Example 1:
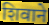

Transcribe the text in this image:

शिवाने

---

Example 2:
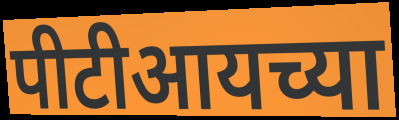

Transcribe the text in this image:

पीटीआयच्या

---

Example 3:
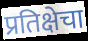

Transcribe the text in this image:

प्रतिक्षेचा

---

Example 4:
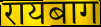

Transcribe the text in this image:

रायबाग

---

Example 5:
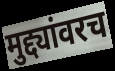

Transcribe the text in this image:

मुद्द्यांवरच